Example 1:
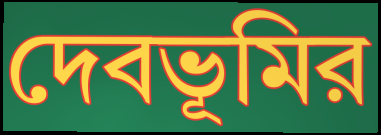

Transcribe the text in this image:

দেবভূমির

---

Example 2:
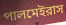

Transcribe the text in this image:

পালমেইরাস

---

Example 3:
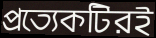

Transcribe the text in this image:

প্রত্যেকটিরই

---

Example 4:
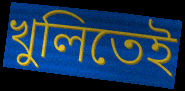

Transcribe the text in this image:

খুলিতেই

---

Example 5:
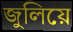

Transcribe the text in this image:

জুলিয়ে